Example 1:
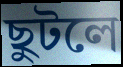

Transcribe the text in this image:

ছুটলে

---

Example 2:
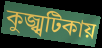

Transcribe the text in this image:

কুজ্ঝ্বটিকায়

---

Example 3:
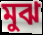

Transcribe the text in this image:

মুঝ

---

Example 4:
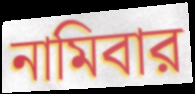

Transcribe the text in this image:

নামিবার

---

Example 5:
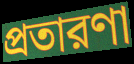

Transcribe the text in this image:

প্রতারণা